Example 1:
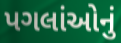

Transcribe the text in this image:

પગલાંઓનું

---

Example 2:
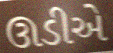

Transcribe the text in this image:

ઊડીએ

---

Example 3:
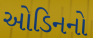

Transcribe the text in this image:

ઓડિનનો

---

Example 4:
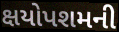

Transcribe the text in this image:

ક્ષયોપશમની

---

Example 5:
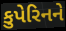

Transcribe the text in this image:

કુપેરિનને